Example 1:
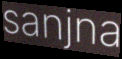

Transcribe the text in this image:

sanjna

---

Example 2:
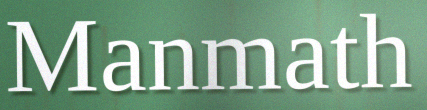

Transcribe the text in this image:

Manmath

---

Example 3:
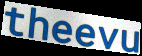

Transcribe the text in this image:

theevu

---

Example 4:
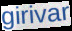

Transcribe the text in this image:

girivar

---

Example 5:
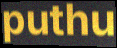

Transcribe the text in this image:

puthu